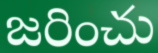
జరించు